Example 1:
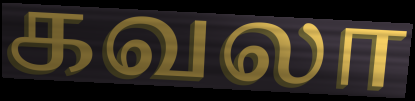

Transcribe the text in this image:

கவலா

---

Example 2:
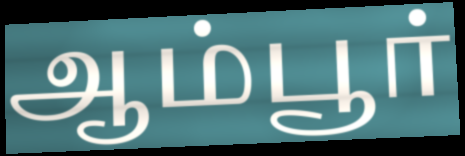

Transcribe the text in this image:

ஆம்பூர்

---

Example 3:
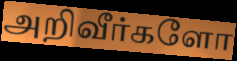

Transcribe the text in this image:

அறிவீர்களோ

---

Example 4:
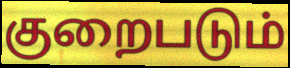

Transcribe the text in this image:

குறைபடும்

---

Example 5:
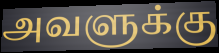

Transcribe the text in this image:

அவளுக்கு